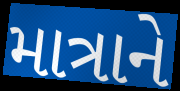
માત્રાને